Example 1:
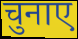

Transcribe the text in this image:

चुनाए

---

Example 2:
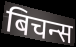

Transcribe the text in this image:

बिचन्स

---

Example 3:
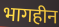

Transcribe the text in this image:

भागहीन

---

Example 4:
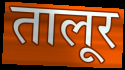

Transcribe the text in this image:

तालूर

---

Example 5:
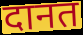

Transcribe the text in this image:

दानत